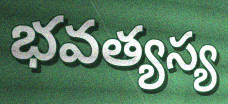
భవత్యస్య